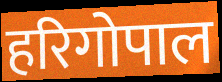
हरिगोपाल